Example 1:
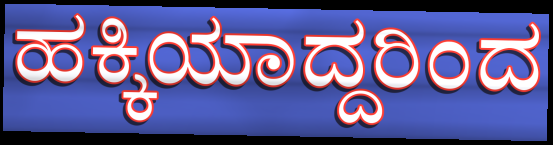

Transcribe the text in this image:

ಹಕ್ಕಿಯಾದ್ದರಿಂದ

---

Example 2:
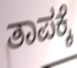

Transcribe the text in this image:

ತಾಪಕ್ಕೆ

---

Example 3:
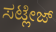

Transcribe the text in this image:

ಸಟ್ಲೇಜ್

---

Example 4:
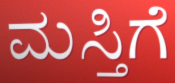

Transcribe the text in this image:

ಮಸ್ತಿಗೆ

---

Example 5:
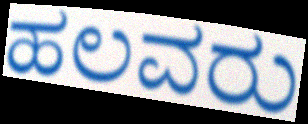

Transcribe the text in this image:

ಹಲವರು